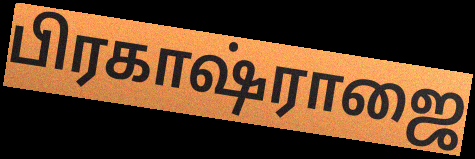
பிரகாஷ்ராஜை